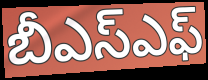
బీఎస్ఎఫ్